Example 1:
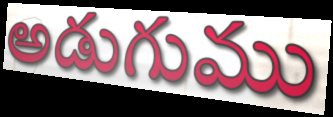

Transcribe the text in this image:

అడుగుము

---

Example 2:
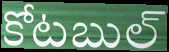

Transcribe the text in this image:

కోటబుల్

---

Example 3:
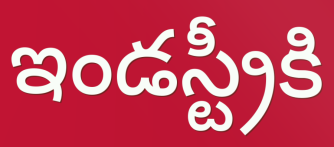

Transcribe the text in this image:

ఇండస్ట్రీకి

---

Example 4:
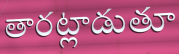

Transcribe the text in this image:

తారట్లాడుతూ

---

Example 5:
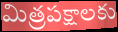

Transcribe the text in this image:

మిత్రపక్షాలకు